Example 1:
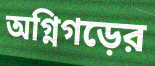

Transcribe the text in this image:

অগ্নিগড়ের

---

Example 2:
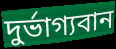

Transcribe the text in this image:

দুর্ভাগ্যবান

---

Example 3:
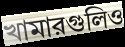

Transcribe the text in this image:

খামারগুলিও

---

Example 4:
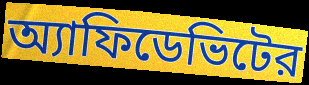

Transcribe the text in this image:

অ্যাফিডেভিটের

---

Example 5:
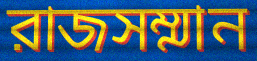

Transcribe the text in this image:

রাজসম্মান